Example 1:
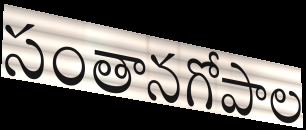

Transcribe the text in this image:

సంతానగోపాల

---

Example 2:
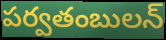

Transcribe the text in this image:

పర్వతంబులన్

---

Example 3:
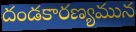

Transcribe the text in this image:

దండకారణ్యమున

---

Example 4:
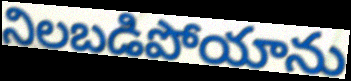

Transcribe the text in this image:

నిలబడిపోయాను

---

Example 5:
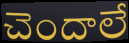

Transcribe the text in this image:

చెందాలే